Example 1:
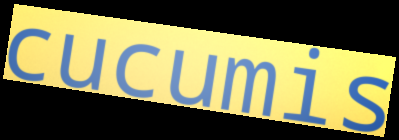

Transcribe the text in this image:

cucumis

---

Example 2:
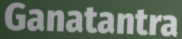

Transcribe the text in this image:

Ganatantra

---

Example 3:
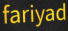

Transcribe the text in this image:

fariyad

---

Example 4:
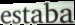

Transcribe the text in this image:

estaba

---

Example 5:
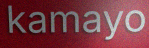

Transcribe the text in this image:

kamayo